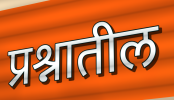
प्रश्नातील